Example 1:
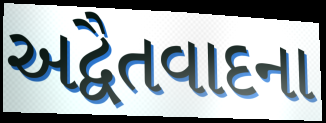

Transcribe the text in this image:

અદ્વૈતવાદના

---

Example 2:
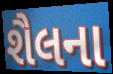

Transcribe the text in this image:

શૈલના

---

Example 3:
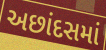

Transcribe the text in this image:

અછાંદસમાં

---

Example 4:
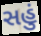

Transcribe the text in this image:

સહું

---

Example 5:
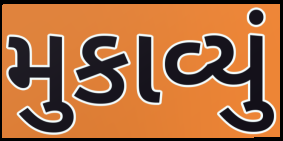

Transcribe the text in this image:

મુકાવ્યું